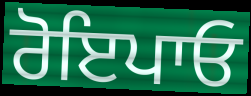
ਰੋਇਪਾਓ